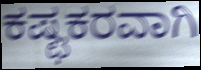
ಕಷ್ಟಕರವಾಗಿ